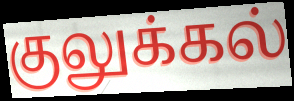
குலுக்கல்